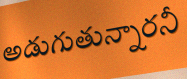
అడుగుతున్నారనీ